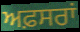
ਅਫ਼ਸਰਾਂ